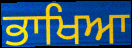
ਭਾਖਿਆ